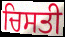
ਚਿਸਤੀ